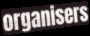
organisers